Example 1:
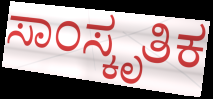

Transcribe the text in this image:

ಸಾಂಸ್ಕೃತಿಕ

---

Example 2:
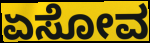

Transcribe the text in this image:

ಏಸೋವ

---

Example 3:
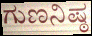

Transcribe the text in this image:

ಗುಣನಿಷ್ಠ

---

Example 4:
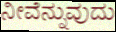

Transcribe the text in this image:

ನೀವೆನ್ನುವುದು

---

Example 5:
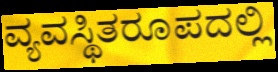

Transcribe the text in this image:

ವ್ಯವಸ್ಥಿತರೂಪದಲ್ಲಿ